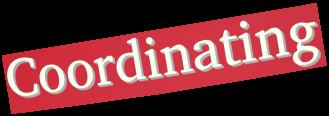
Coordinating